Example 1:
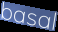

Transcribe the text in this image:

basal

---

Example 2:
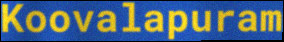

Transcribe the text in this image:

Koovalapuram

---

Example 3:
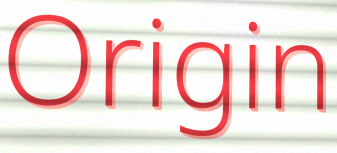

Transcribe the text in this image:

Origin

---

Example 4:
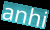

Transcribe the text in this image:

anhi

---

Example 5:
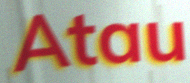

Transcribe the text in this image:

Atau